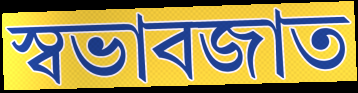
স্বভাবজাত